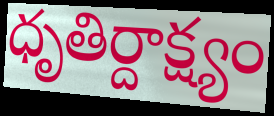
ధృతిర్దాక్ష్యం